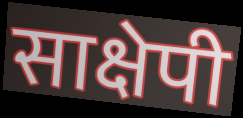
साक्षेपी